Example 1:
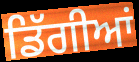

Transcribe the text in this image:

ਡਿੱਗੀਆਂ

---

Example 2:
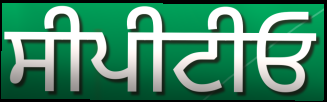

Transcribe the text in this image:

ਸੀਪੀਟੀਓ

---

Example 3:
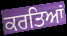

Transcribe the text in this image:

ਕਰਤਿਆਂ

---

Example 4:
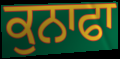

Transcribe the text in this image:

ਕੁਨਾਫਾ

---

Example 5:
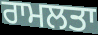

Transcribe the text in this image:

ਰਾਮਲਤਾ